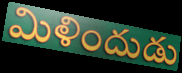
మిళిందుడు